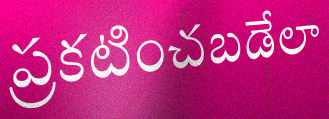
ప్రకటించబడేలా